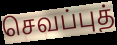
செவப்புத்